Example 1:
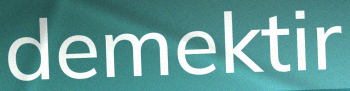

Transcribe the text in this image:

demektir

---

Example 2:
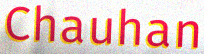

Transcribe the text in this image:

Chauhan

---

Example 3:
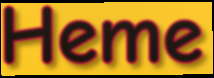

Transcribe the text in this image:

Heme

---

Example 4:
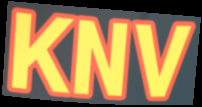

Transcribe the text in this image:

KNV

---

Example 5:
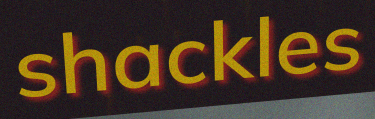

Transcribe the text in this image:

shackles